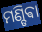
ମଣ୍ଡିଵା